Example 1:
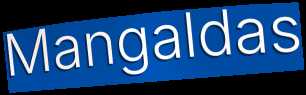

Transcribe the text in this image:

Mangaldas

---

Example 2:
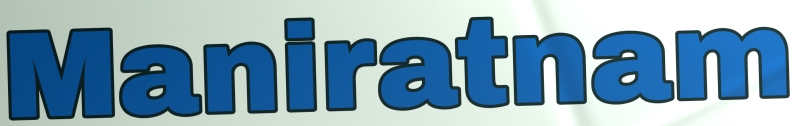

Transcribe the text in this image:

Maniratnam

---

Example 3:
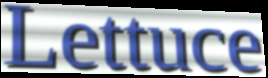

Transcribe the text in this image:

Lettuce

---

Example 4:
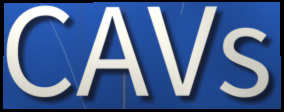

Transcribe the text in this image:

CAVs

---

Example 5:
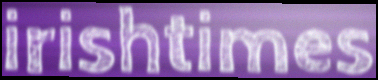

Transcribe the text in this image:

irishtimes